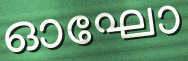
ഓഘോ